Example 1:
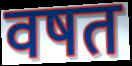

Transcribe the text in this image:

वषत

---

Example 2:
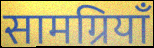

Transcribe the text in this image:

सामग्रियाँ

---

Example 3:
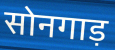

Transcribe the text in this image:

सोनगाड़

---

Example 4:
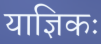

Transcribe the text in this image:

याज्ञिकः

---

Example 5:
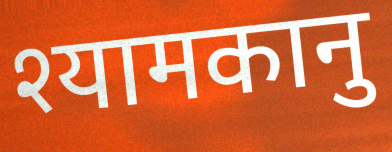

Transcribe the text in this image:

श्यामकानु